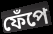
ফেঁপে